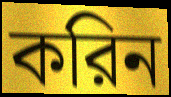
করিন